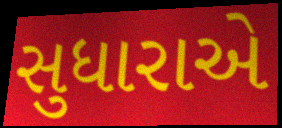
સુધારાએ